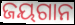
ଜୟଗାନ